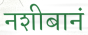
नशीबानं